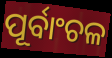
ପୂର୍ବାଂଚଳ